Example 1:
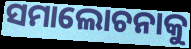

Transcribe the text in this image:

ସମାଲୋଚନାକୁ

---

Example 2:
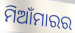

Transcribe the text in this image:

ମିଆଁମାରର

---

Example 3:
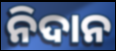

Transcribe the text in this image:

ନିଦାନ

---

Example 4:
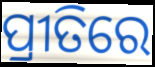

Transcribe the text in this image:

ପ୍ରୀତିରେ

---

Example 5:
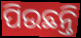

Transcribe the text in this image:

ପିଉଛନ୍ତି